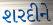
શરદીને